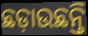
ଛଡ଼ାଉଛନ୍ତି